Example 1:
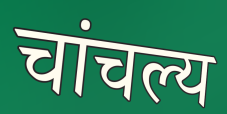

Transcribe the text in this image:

चांचल्य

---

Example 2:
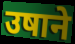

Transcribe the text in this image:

उषाने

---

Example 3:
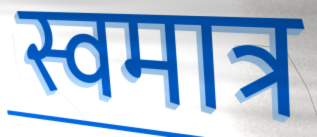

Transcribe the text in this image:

स्वमात्र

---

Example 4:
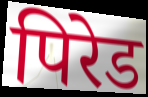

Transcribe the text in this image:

पिरेड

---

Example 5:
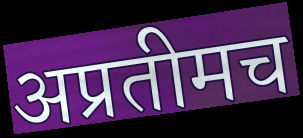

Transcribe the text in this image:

अप्रतीमच